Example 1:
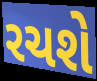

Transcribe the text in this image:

રચશે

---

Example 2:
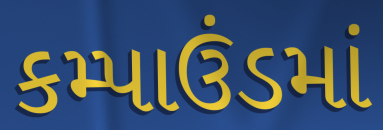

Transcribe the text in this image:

કમ્પાઉંડમાં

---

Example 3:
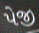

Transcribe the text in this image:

પેજી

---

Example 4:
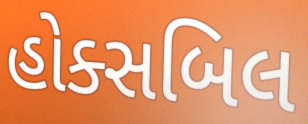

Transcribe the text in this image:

હોક્સબિલ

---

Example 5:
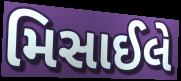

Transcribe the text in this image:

મિસાઈલે